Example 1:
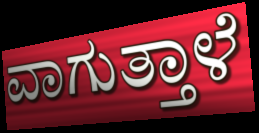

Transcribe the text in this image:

ವಾಗುತ್ತಾಳೆ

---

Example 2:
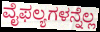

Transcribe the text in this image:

ವೈಫಲ್ಯಗಳನ್ನೆಲ್ಲ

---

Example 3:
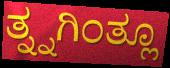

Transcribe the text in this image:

ತ್ನ್ನಗಿಂತ್ಲೂ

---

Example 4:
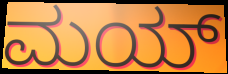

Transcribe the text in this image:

ಮಯ್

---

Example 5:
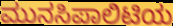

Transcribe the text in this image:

ಮುನಸಿಪಾಲಿಟಿಯ